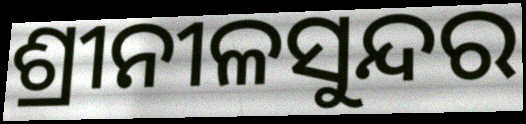
ଶ୍ରୀନୀଳସୁନ୍ଦର